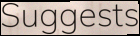
Suggests